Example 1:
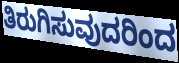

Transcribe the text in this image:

ತಿರುಗಿಸುವುದರಿಂದ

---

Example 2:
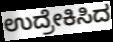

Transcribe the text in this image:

ಉದ್ರೇಕಿಸಿದ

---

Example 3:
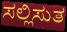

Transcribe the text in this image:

ಸಲ್ಲಿಸುತ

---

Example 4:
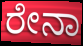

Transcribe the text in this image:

ರೇನಾ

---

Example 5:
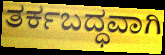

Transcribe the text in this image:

ತರ್ಕಬದ್ಧವಾಗಿ